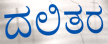
ದಲಿತರ